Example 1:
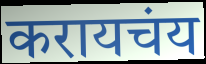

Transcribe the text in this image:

करायचंय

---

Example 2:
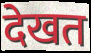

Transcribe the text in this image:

देखत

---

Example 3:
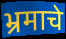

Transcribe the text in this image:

भ्रमाचे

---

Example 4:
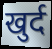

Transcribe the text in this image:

खुर्द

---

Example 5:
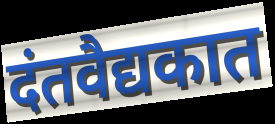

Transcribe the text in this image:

दंतवैद्यकात